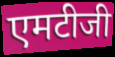
एमटीजी